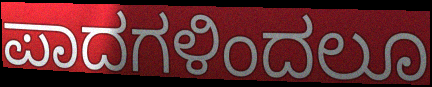
ಪಾದಗಳಿಂದಲೂ